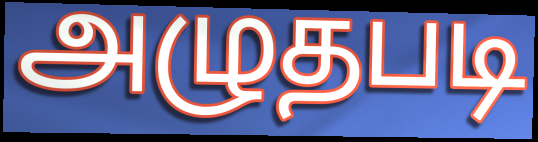
அழுதபடி